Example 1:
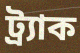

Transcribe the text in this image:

ট্র্যাক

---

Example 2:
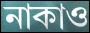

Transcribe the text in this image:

নাকাও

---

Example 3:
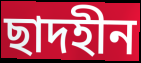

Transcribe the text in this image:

ছাদহীন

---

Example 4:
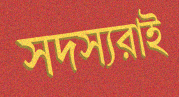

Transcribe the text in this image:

সদস্যরাই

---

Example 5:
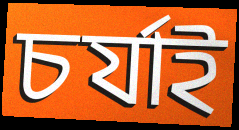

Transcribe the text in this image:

চর্যাই